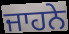
ਜਾਹਨੇ